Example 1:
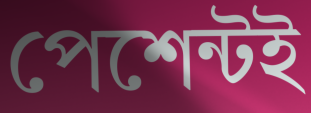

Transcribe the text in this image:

পেশেন্টই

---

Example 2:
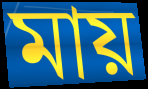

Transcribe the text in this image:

মায়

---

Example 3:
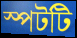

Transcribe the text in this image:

স্পটটি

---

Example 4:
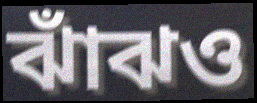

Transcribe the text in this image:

ঝাঁঝও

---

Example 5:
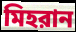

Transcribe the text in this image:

মিহরান